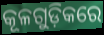
କୂଳଗୁଡ଼ିକରେ